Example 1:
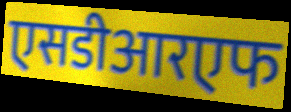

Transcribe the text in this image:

एसडीआरएफ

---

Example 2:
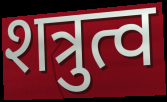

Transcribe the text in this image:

शत्रुत्व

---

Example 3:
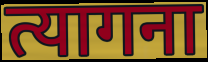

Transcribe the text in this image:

त्यागना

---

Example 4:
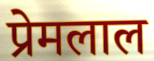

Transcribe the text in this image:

प्रेमलाल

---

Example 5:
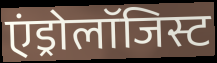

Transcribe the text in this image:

एंड्रोलॉजिस्ट